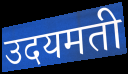
उदयमती